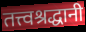
तत्त्वश्रद्धानी